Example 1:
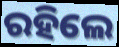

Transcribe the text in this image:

ରହିଲେ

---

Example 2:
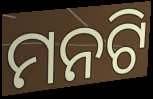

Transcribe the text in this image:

ମନଟି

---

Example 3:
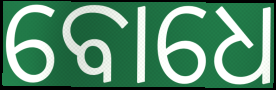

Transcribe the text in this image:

ବୋଧେ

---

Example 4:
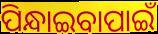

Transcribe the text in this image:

ପିନ୍ଧାଇବାପାଇଁ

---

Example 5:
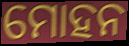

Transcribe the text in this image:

ମୋହନ